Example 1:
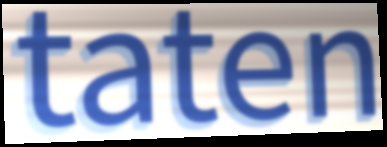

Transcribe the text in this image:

taten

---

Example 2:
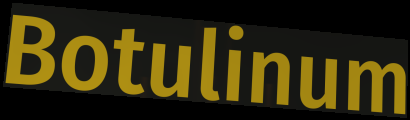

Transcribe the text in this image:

Botulinum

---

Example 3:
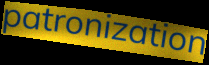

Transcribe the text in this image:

patronization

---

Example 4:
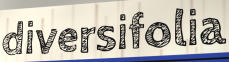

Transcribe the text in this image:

diversifolia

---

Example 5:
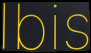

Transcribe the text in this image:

Ibis